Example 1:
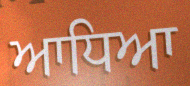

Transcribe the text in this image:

ਆਧਿਆ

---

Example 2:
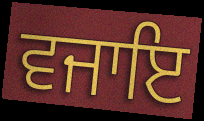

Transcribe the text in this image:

ਵਜਾਇ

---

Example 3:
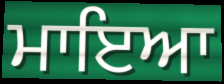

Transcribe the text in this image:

ਮਾਇਆ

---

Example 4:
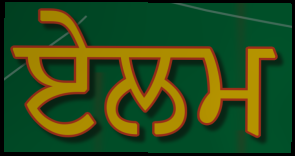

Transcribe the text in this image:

ਏਲਮ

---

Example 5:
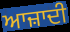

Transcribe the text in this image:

ਆਜ਼ਾਦੀ